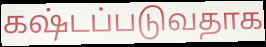
கஷ்டப்படுவதாக